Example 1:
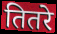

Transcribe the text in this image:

तितरे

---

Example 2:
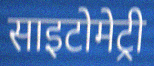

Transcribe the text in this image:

साइटोमेट्री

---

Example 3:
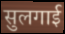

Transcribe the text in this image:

सुलगाई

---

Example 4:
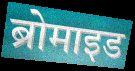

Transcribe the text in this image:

ब्रोमाइड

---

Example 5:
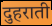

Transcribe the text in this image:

दुहराती